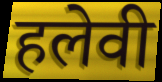
हलेवी